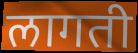
लागती